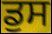
ਡੁਸ